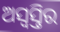
ଅସ୍ୱସ୍ତିର